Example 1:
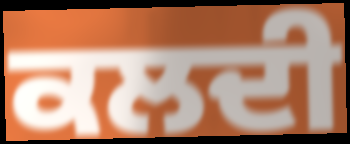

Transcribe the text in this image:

ਕਲਦੀ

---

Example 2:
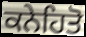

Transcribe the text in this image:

ਕਨੇਹਿਤੋ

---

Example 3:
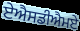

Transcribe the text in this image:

ਏਐਸਡੀਐਮਏ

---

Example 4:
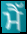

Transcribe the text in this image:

ਮੈੱ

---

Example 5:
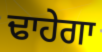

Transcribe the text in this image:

ਢਾਹੇਗਾ